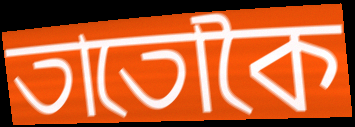
তাতোকৈ